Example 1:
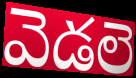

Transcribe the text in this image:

వెడలె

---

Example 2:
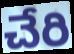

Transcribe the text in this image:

చేరి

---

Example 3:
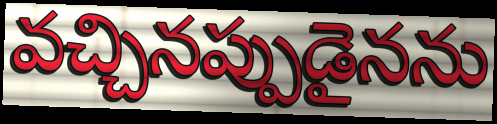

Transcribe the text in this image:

వచ్చినప్పుడైనను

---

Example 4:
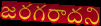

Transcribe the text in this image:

జరగరాదని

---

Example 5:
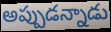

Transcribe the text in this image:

అప్పుడన్నాడు